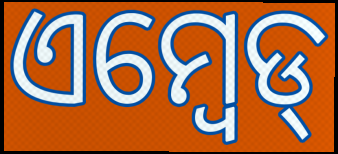
ଏମ୍ବେଡ୍